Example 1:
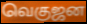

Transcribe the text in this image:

வெகுஜன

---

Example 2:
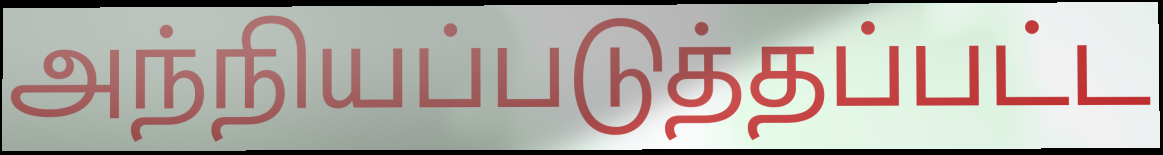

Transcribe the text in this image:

அந்நியப்படுத்தப்பட்ட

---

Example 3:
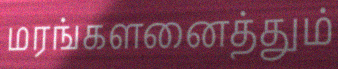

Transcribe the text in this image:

மரங்களனைத்தும்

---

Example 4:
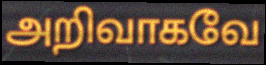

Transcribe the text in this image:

அறிவாகவே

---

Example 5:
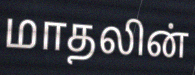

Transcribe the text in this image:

மாதலின்